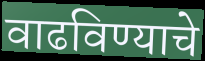
वाढविण्याचे